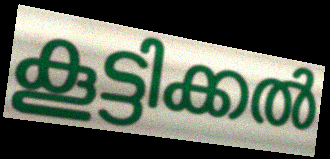
കൂട്ടിക്കൽ